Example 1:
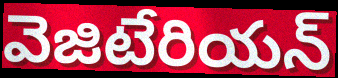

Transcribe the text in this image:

వెజిటేరియన్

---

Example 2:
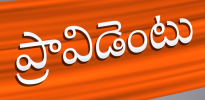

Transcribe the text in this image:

ప్రావిడెంటు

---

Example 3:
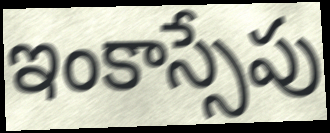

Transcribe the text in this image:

ఇంకాస్సేపు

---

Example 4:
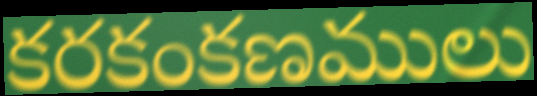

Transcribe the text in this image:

కరకంకణములు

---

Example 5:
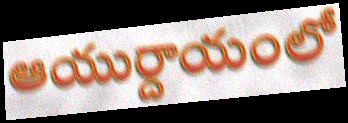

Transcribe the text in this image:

ఆయుర్దాయంలో